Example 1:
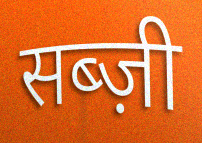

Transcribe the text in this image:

सब्ज़ी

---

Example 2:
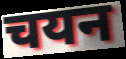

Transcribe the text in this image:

चयन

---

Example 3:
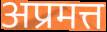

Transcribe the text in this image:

अप्रमत्त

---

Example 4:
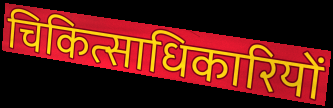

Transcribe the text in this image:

चिकित्साधिकारियों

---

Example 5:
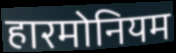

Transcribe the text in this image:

हारमोनियम